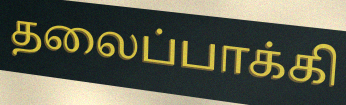
தலைப்பாக்கி